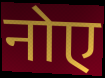
नोए